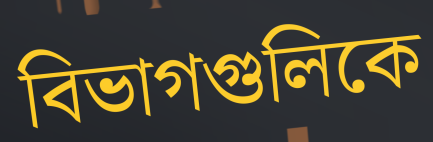
বিভাগগুলিকে